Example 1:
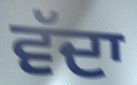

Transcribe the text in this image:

ਵੱਦਾ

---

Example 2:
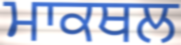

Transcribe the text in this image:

ਮਾਕਥਲ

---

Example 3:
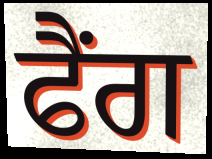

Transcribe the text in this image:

ਫੈਂਗ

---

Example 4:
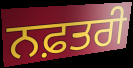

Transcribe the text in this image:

ਨਫ਼ਤਰੀ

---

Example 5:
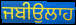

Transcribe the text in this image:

ਜਬੀਉਲਾਹ